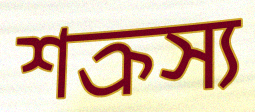
শক্রস্য